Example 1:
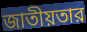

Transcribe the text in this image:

জাতীয়তার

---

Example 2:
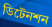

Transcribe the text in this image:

ডিটেনশন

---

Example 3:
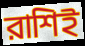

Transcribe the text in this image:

রাশিই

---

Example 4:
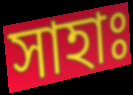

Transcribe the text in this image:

সাহাঃ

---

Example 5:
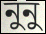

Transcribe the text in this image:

নুনু